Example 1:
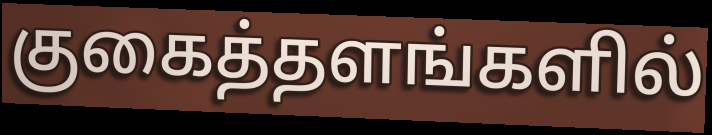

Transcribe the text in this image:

குகைத்தளங்களில்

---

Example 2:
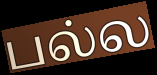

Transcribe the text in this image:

பல்ல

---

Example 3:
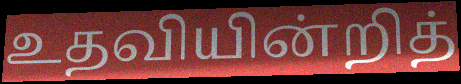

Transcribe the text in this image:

உதவியின்றித்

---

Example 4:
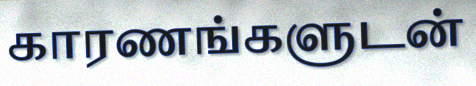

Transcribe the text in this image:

காரணங்களுடன்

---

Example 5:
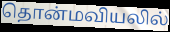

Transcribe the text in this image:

தொன்மவியலில்